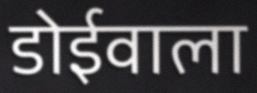
डोईवाला